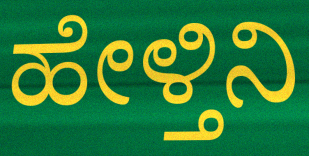
ಹೇಳ್ತಿನಿ